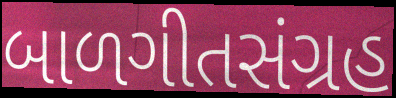
બાળગીતસંગ્રહ